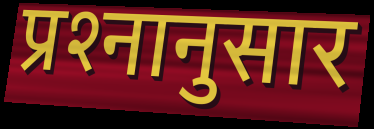
प्रश्नानुसार